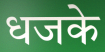
धजके